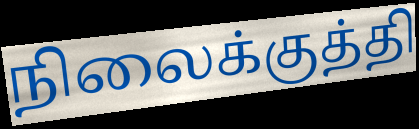
நிலைக்குத்தி